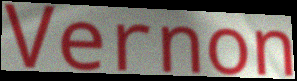
Vernon